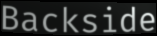
Backside